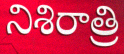
నిశిరాత్రి